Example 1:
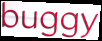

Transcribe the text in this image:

buggy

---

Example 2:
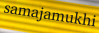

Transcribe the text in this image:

samajamukhi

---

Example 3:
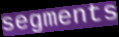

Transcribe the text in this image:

segments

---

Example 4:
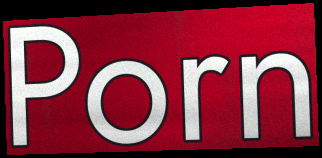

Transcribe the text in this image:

Porn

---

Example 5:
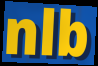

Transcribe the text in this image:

nlb